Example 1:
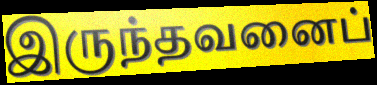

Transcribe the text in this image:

இருந்தவனைப்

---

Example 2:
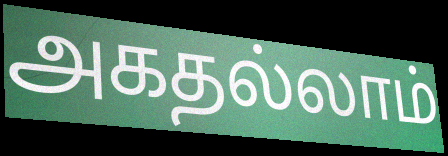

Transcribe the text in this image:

அகதல்லாம்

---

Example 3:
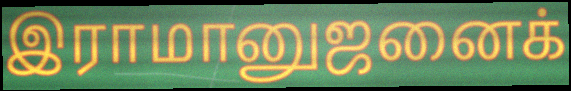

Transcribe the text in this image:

இராமானுஜனைக்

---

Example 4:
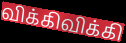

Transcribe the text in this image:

விக்கிவிக்கி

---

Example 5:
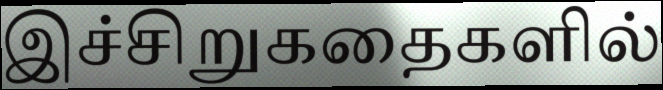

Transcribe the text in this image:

இச்சிறுகதைகளில்